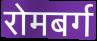
रोमबर्ग